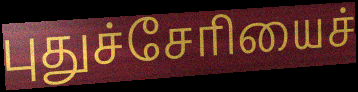
புதுச்சேரியைச்